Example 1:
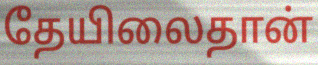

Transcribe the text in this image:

தேயிலைதான்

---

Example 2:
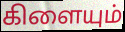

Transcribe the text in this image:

கிளையும்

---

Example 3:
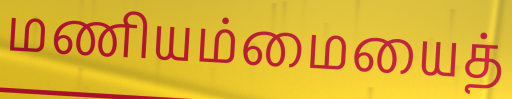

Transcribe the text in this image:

மணியம்மையைத்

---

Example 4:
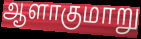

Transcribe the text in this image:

ஆளாகுமாறு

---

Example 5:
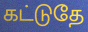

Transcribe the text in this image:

கட்டுதே